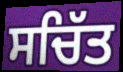
ਸਚਿੱਤ